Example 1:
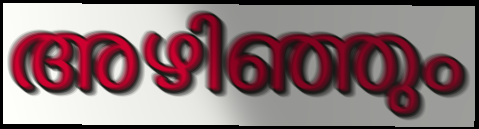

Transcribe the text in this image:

അഴിഞ്ഞും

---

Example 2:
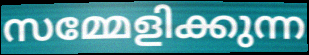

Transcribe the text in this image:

സമ്മേളിക്കുന്ന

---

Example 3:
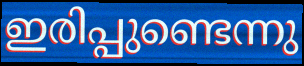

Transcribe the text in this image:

ഇരിപ്പുണ്ടെന്നു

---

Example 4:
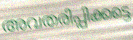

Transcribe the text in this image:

അവതരിപ്പിക്കട്ടെ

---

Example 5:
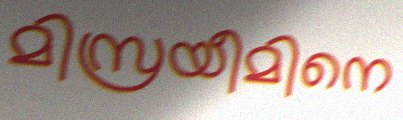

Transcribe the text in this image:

മിസ്രയീമിനെ